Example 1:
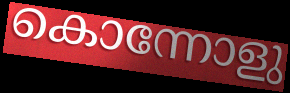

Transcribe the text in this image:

കൊന്നോളു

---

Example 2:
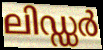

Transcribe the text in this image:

ലിഡ്ഡർ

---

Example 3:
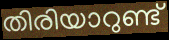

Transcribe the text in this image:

തിരിയാറുണ്ട്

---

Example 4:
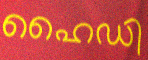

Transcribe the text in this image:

ഹൈഡി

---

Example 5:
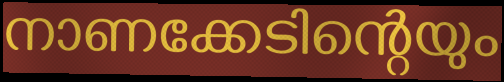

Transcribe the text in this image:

നാണക്കേടിന്റെയും